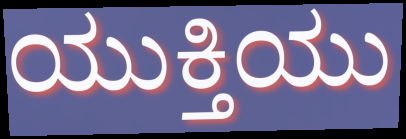
ಯುಕ್ತಿಯು